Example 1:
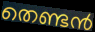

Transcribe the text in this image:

തെണ്ടൻ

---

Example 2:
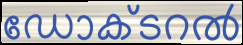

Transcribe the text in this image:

ഡോക്ടറൽ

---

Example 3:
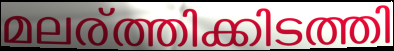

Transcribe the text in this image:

മലര്ത്തിക്കിടത്തി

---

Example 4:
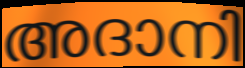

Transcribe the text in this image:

അദാനി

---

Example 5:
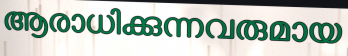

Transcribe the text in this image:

ആരാധിക്കുന്നവരുമായ